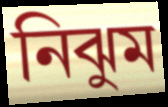
নিঝুম